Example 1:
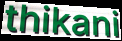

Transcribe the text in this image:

thikani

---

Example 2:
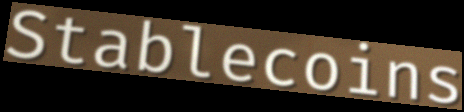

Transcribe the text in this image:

Stablecoins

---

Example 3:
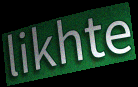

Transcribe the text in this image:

likhte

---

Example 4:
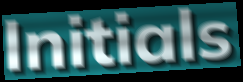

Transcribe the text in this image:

Initials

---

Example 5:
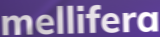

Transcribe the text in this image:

mellifera